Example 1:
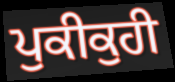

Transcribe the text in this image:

ਪੁਕੀਕੁਹੀ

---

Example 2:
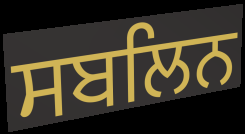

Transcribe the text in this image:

ਸਬਲਿਨ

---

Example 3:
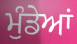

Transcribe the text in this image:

ਮੁੰਡੇਆਂ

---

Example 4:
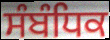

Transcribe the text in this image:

ਸੰਬੰਧਿਕ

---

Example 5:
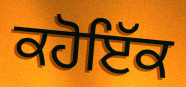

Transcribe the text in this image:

ਕਹੋਇੱਕ